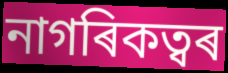
নাগৰিকত্বৰ